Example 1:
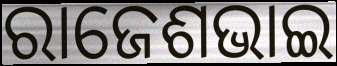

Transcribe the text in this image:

ରାଜେଶଭାଇ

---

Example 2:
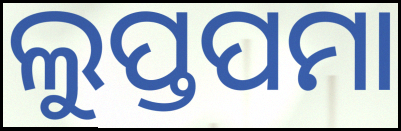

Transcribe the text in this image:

ଲୁପ୍ତପମା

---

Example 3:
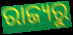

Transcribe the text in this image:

ରାଜ୍ୟରୁ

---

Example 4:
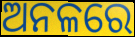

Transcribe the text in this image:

ଅନଳରେ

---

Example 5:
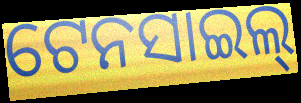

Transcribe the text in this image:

ଟେନସାଇଲ୍